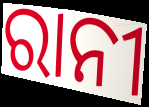
ରାନୀ